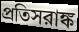
প্রতিসরাঙ্ক